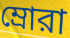
ম্রোরা